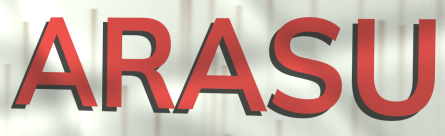
ARASU